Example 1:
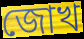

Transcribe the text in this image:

জোখ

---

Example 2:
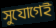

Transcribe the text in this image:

সুযোগেই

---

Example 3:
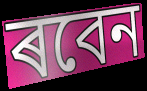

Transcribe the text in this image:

ৰবেন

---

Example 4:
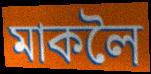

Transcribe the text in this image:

মাকলৈ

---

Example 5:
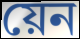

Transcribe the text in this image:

য়েন